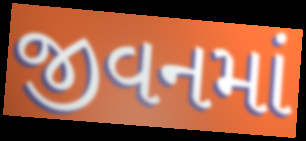
જીવનમાં